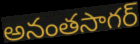
అనంతసాగర్